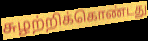
சுழற்றிக்கொண்டது